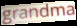
grandma